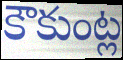
కౌకుంట్ల